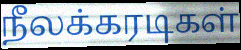
நீலக்கரடிகள்